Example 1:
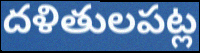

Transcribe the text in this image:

దళితులపట్ల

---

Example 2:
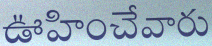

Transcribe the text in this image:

ఊహించేవారు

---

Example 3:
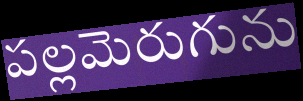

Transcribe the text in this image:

పల్లమెరుగును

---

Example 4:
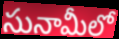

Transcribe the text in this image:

సునామీలో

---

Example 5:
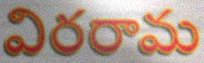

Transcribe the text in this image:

విరరామ